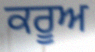
ਕਰੂਅ